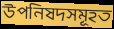
উপনিষদসমূহত